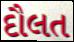
દૌલત